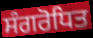
ਸੰਗਰੋਧਿਤ